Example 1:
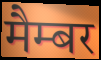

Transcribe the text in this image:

मैम्बर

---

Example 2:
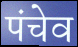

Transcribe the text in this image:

पंचेव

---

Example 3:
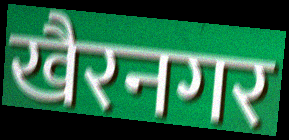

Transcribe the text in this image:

खैरनगर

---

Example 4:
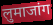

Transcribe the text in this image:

लुमाजांग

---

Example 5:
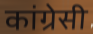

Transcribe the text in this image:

कांग्रेसी